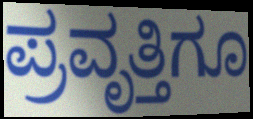
ಪ್ರವೃತ್ತಿಗೂ